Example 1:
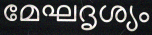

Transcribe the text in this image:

മേഘദൃശ്യം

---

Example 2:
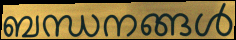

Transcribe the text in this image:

ബന്ധനങ്ങൾ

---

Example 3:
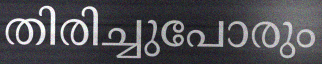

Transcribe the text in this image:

തിരിച്ചുപോരും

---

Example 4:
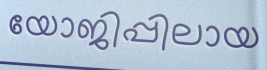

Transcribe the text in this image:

യോജിപ്പിലായ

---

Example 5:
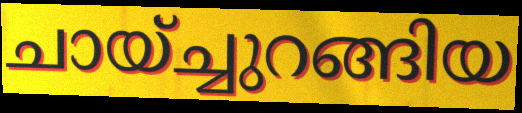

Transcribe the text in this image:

ചായ്ച്ചുറങ്ങിയ